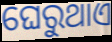
ଘେରୁଥାଏ